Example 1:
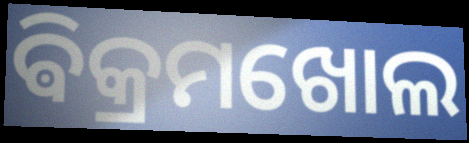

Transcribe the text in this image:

ଵିକ୍ରମଖୋଲ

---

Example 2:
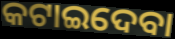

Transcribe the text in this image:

କଟାଇଦେବା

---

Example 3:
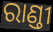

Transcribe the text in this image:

ରାଣ୍ଡୀ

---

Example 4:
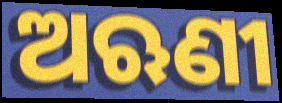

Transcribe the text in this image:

ଅଋଣୀ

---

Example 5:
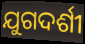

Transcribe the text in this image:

ଯୁଗଦର୍ଶୀ